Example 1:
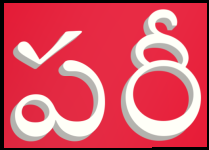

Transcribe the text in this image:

పరీ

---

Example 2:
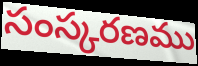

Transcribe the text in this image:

సంస్కరణము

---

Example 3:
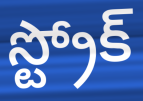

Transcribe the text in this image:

స్ట్రోక్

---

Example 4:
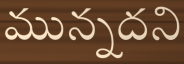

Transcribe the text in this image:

మున్నదని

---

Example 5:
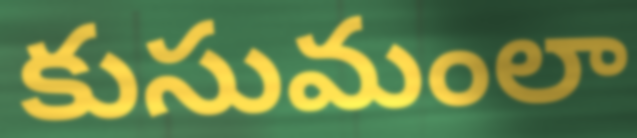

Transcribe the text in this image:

కుసుమంలా